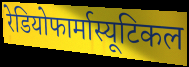
रेडियोफार्मास्यूटिकल